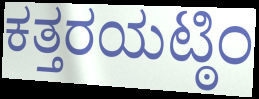
ಕತ್ತರಯಟ್ಠಿಂ